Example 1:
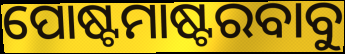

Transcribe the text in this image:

ପୋଷ୍ଟମାଷ୍ଟରବାବୁ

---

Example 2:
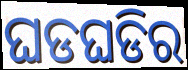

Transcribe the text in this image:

ଘଡଘଡିର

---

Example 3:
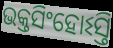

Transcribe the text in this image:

ଭକ୍ତସିଂହୋଽସ୍ତି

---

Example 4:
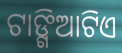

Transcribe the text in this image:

ଟାଙ୍ଗିଆଟିଏ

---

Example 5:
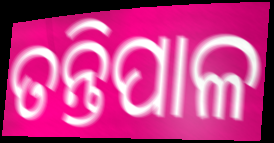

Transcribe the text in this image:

ତନ୍ତିପାଳ